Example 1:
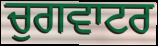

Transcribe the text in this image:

ਚੁਗਵਾਟਰ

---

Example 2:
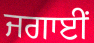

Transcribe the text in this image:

ਜਗਾਈਂ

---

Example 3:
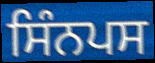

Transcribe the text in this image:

ਸਿੰਨਪਸ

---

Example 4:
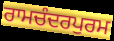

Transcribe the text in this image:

ਰਾਮਚੰਦਰਪੁਰਮ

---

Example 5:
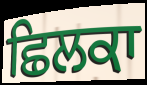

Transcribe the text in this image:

ਛਿਲਕਾ